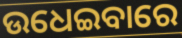
ଉଧେଇବାରେ